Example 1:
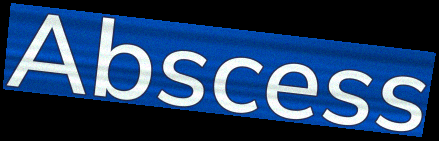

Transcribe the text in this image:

Abscess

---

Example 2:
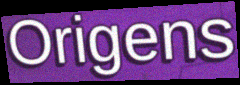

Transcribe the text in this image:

Origens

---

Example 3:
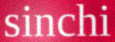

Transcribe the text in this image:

sinchi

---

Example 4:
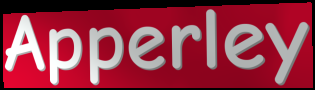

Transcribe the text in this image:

Apperley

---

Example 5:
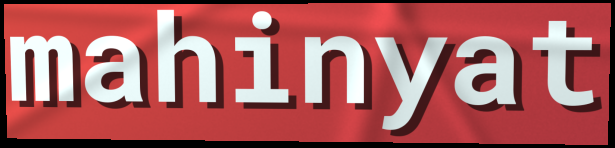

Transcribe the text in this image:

mahinyat